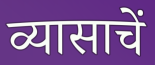
व्यासाचें